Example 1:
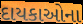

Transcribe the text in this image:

દાયકાઓના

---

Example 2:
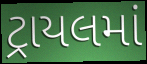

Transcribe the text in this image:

ટ્રાયલમાં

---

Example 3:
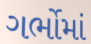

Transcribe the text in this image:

ગર્ભોમાં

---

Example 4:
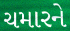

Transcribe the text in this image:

ચમારને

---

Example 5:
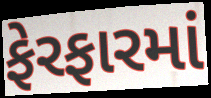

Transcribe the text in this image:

ફેરફારમાં